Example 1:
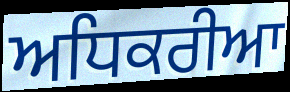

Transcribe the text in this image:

ਅਧਿਕਰੀਆ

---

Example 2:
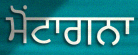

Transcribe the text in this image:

ਮੋਂਟਾਗਨਾ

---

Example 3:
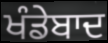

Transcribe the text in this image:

ਖੰਡੇਬਾਦ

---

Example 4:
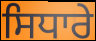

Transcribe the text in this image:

ਸਿਧਾਰੇ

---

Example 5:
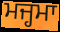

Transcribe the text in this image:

ਮਜ੍ਹਮਾ